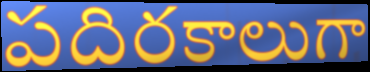
పదిరకాలుగా